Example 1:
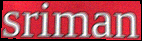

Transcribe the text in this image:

sriman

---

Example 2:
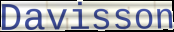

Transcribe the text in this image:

Davisson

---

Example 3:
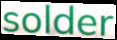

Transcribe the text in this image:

solder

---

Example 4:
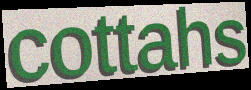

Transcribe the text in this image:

cottahs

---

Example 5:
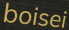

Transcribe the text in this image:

boisei